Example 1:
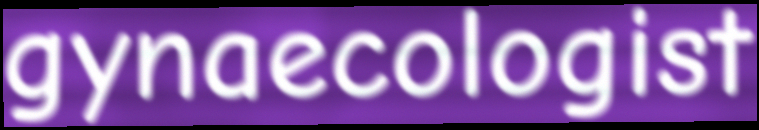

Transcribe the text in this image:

gynaecologist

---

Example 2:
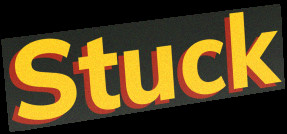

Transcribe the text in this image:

Stuck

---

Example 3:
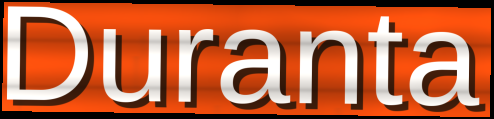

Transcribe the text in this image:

Duranta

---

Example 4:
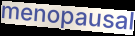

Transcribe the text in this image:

menopausal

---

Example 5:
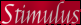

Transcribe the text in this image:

Stimulus